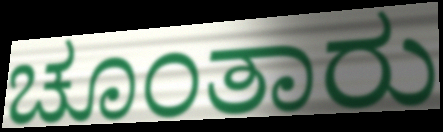
ಚೂಂತಾರು